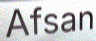
Afsan